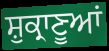
ਸ਼ੁਕ੍ਰਾਣੂਆਂ